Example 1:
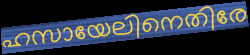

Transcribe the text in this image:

ഹസായേലിനെതിരേ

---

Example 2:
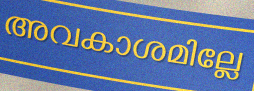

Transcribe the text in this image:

അവകാശമില്ലേ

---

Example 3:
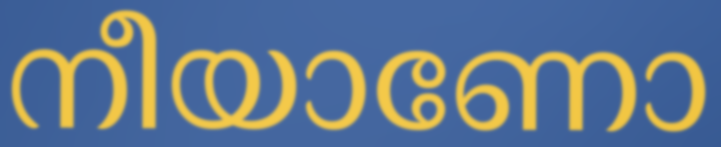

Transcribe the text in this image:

നീയാണോ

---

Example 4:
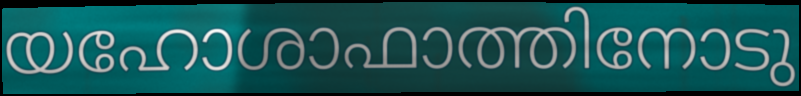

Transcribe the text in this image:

യഹോശാഫാത്തിനോടു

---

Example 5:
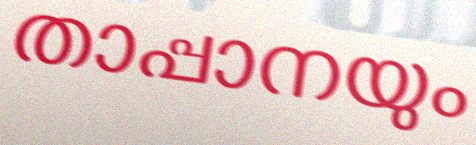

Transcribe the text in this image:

താപ്പാനയും